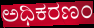
ಅಧಿಕರಣಂ